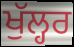
ਖੁੱਲ੍ਹਰ